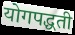
योगपद्धती